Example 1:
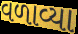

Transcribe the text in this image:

વળાવ્યા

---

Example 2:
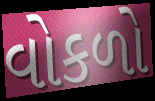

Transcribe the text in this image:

વોકળો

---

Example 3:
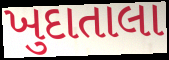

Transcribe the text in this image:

ખુદાતાલા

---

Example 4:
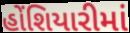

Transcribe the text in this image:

હોંશિયારીમાં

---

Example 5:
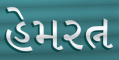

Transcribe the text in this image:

હેમરત્ન